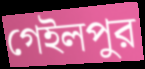
গেইলপুর